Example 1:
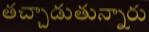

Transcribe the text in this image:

తచ్చాడుతున్నారు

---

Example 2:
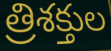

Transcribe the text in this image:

త్రిశక్తుల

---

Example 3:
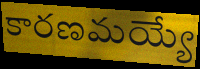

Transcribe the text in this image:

కారణమయ్యే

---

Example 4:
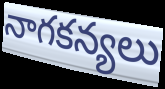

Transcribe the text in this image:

నాగకన్యలు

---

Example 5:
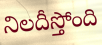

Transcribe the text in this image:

నిలదీస్తోంది